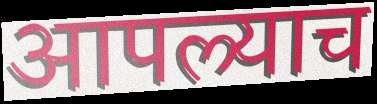
आपल्याच